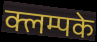
क्लम्पके